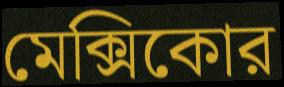
মেক্সিকোর